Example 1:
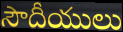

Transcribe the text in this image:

సౌదీయులు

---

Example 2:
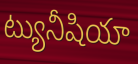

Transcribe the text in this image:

ట్యునీషియా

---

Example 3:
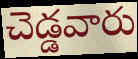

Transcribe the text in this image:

చెడ్డవారు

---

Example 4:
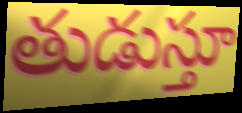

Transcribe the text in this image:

తుడుస్తూ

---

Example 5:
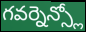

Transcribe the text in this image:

గవర్నెన్స్లో